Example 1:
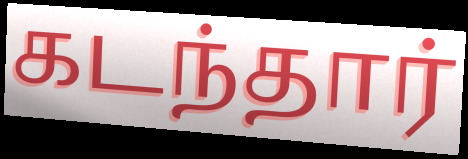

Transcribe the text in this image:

கடந்தார்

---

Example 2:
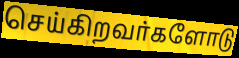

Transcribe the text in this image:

செய்கிறவர்களோடு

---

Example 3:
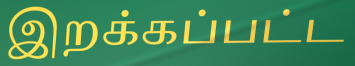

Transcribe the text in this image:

இறக்கப்பட்ட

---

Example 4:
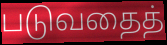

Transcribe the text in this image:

படுவதைத்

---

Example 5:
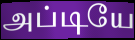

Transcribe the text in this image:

அப்டியே